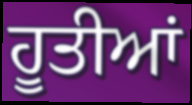
ਹੂਤੀਆਂ